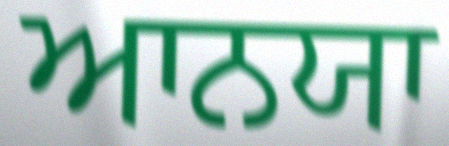
ਆਨਯਾ